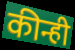
कीन्ही